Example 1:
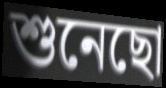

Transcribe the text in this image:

শুনেছো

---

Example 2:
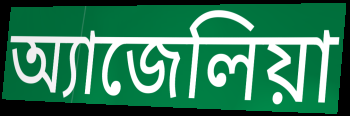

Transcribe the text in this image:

অ্যাজেলিয়া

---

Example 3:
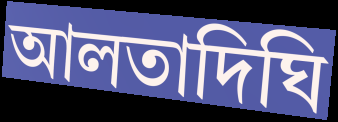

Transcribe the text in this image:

আলতাদিঘি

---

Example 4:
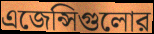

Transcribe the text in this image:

এজেন্সিগুলোর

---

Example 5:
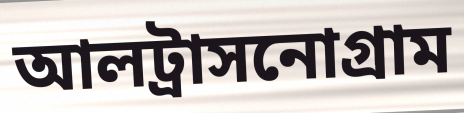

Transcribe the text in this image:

আলট্রাসনোগ্রাম